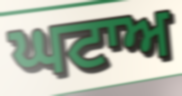
ਘਟਾਅ